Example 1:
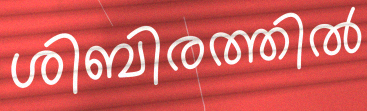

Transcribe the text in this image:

ശിബിരത്തിൽ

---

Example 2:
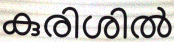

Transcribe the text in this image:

കുരിശിൽ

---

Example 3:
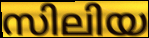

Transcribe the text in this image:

സിലിയ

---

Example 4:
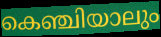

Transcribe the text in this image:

കെഞ്ചിയാലും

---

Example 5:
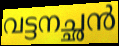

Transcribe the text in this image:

വട്ടനച്ഛൻ